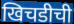
खिचडीची